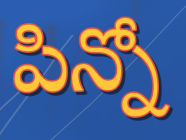
పిన్నో